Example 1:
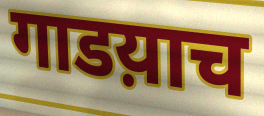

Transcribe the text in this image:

गाडय़ाच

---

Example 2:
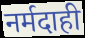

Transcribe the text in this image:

नर्मदाही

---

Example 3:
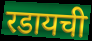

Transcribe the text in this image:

रडायची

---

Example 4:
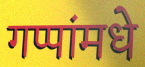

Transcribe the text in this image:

गप्पांमधे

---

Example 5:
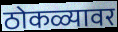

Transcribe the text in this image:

ठोकळ्यावर